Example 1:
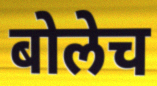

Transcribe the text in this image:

बोलेच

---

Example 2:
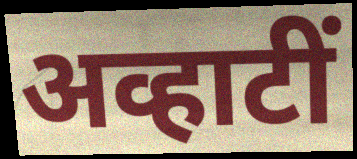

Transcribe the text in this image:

अव्हाटीं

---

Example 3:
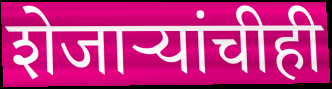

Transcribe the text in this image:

शेजाऱ्यांचीही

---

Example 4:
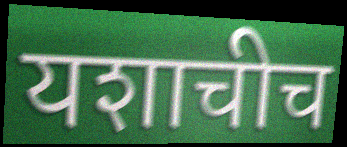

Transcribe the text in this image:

यशाचीच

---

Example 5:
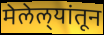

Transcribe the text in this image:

मेलेल्यांतून